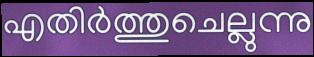
എതിർത്തുചെല്ലുന്നു